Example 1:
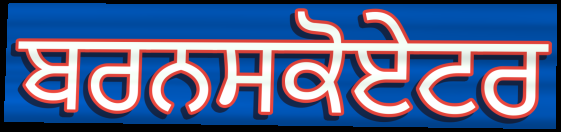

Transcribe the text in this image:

ਬਰਨਸਕੋਏਟਰ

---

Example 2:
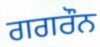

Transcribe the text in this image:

ਗਗਰੌਨ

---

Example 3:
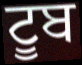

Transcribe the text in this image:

ਟੂਬ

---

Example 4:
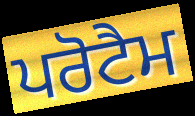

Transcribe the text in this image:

ਪਰੋਟੈਮ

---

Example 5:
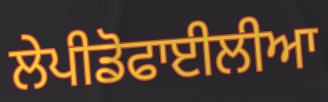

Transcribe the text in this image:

ਲੇਪੀਡੋਫਾਈਲੀਆ